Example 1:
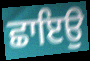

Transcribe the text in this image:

ਛਾਇਉ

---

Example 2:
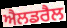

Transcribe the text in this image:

ਐਲਡਰੈਲ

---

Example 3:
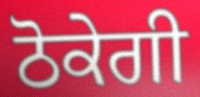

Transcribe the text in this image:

ਠੋਕੇਗੀ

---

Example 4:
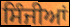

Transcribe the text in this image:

ਸਿੰਜੀਆਂ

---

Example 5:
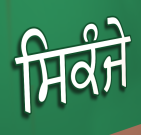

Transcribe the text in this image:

ਸਿਕੰਜੇ